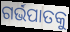
ଗର୍ଭପାତକୁ